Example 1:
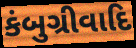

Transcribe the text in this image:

કંબુગ્રીવાદિ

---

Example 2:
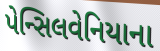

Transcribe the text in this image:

પેન્સિલવેનિયાના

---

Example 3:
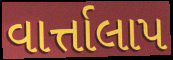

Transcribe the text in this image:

વાર્ત્તાલાપ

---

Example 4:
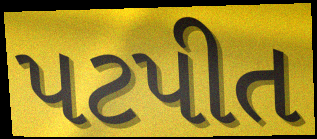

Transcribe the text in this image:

પટપીત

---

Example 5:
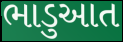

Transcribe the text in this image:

ભાડુઆત